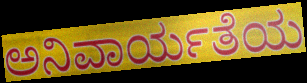
ಅನಿವಾರ್ಯತೆಯ